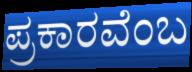
ಪ್ರಕಾರವೆಂಬ